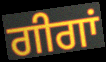
ਗੀਗਾਂ